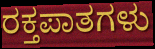
ರಕ್ತಪಾತಗಳು